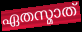
ഏതസ്മാത്